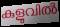
കുളുവിൽ